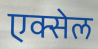
एक्सेल